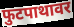
फुटपाथावर